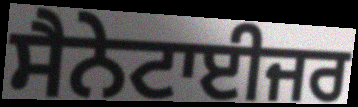
ਸੈਨੇਟਾਈਜਰ